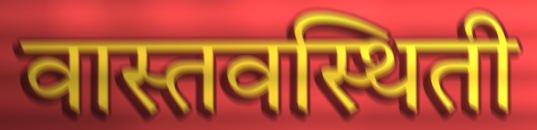
वास्तवस्थिती